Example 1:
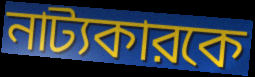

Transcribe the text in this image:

নাট্যকারকে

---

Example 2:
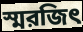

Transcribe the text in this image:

স্মরজিৎ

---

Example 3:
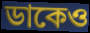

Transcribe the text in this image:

ডাকেও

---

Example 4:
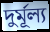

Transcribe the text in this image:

দুর্মূল্য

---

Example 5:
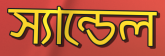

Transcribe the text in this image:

স্যান্ডেল